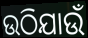
ଉଠିଯାଉଁ